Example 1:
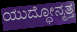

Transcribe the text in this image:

ಯುದ್ಧೋನ್ಮತ್ತ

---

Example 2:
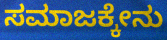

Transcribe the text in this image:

ಸಮಾಜಕ್ಕೇನು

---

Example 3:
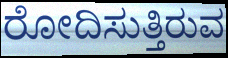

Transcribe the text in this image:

ರೋದಿಸುತ್ತಿರುವ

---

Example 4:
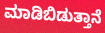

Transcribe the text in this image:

ಮಾಡಿಬಿಡುತ್ತಾನೆ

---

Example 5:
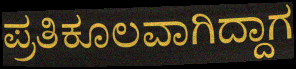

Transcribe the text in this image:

ಪ್ರತಿಕೂಲವಾಗಿದ್ದಾಗ